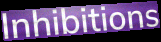
Inhibitions